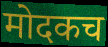
मोदकच